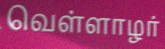
வெள்ளாழர்